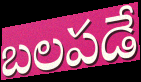
బలపడే